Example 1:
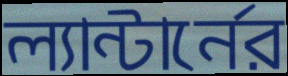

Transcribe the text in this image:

ল্যান্টার্নের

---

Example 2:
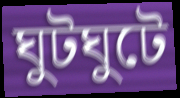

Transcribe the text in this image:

ঘুটঘুটে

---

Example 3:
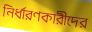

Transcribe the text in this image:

নির্ধারণকারীদের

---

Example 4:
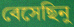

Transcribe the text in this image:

বেসেছিনু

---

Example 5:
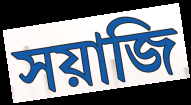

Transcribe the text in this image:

সয়াজি